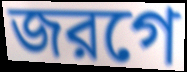
জরগে